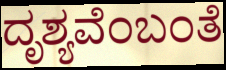
ದೃಶ್ಯವೆಂಬಂತೆ